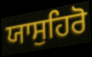
ਯਾਸੁਹਿਰੋ